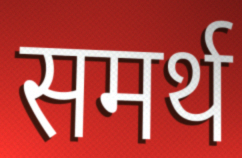
समर्थ